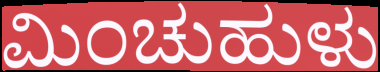
ಮಿಂಚುಹುಳು